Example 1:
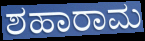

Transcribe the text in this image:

ಶಹಾರಾಮ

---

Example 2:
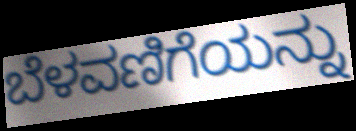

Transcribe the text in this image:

ಬೆಳವಣಿಗೆಯನ್ನು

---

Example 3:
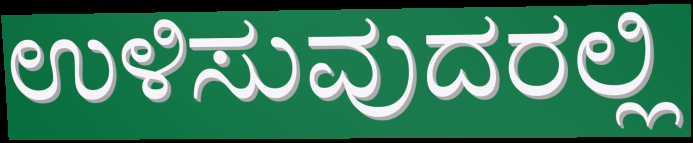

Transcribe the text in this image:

ಉಳಿಸುವುದರಲ್ಲಿ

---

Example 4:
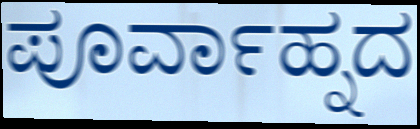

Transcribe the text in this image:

ಪೂರ್ವಾಹ್ನದ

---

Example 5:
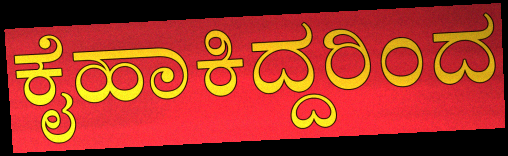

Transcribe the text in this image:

ಕೈಹಾಕಿದ್ದರಿಂದ